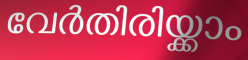
വേർതിരിയ്ക്കാം